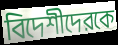
বিদেশীদেরকে